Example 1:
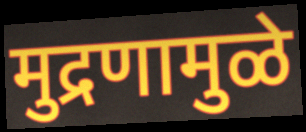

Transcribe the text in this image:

मुद्रणामुळे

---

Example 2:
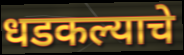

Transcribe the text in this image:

धडकल्याचे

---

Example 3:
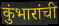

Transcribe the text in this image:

कुंभारांची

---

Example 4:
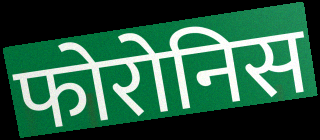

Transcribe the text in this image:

फोरोनिस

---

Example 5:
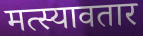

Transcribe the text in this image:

मत्स्यावतार